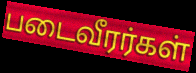
படைவீரர்கள்